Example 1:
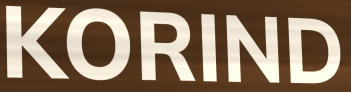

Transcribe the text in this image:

KORIND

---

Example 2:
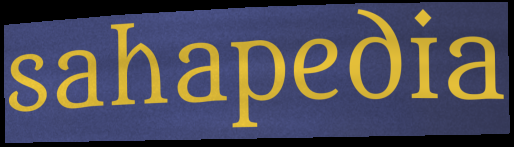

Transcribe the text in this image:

sahapedia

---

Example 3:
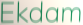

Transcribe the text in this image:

Ekdam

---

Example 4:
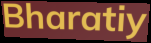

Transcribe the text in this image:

Bharatiy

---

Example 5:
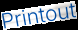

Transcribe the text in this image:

Printout